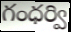
గంధర్వి